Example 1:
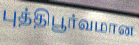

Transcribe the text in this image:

புத்திபூர்வமான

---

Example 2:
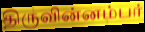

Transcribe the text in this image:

திருவின்னம்பர்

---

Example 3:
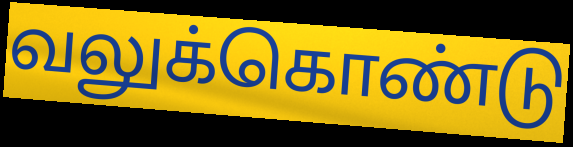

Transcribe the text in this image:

வலுக்கொண்டு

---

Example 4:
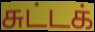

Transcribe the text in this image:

சுட்டக்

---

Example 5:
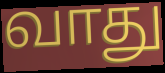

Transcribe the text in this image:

வாது